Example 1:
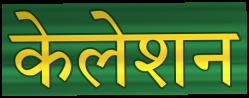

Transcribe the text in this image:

केलेशन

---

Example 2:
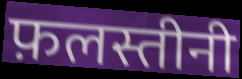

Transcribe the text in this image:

फ़लस्तीनी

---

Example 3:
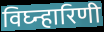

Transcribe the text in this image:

विघ्न्हारिणी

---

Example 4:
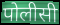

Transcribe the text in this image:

पोलीसी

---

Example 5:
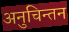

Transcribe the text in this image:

अनुचिन्तन